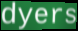
dyers